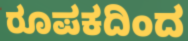
ರೂಪಕದಿಂದ